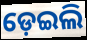
ଡ଼େଇଲି